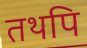
तथपि